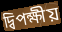
দ্বিপক্ষীয়